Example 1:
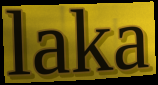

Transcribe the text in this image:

laka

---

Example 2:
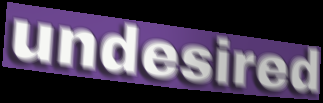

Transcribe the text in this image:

undesired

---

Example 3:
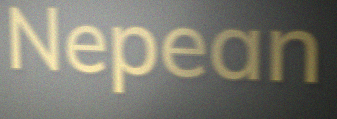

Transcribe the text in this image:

Nepean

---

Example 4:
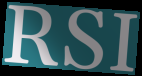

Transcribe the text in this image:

RSI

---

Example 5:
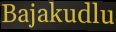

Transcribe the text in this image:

Bajakudlu